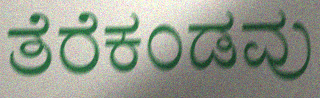
ತೆರೆಕಂಡವು